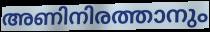
അണിനിരത്താനും